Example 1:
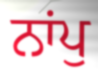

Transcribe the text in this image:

ਨਾਂਪੁ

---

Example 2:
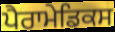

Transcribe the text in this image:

ਪੈਰਾਮੇਡਿਕਸ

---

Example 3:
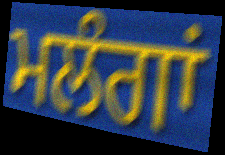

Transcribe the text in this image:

ਮਲੰਗਾਂ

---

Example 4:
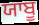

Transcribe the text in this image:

ਯਾਬੂ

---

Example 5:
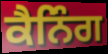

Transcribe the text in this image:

ਕੈਨਿੰਗ